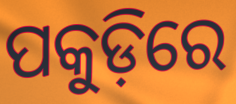
ପକୁଡ଼ିରେ